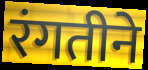
रंगतीने